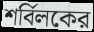
শর্বিলকের